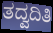
ತದ್ವದಿತಿ